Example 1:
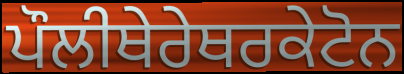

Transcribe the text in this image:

ਪੌਲੀਥੇਰੇਥਰਕੇਟੋਨ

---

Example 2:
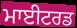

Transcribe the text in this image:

ਮਾਈਟਰਡ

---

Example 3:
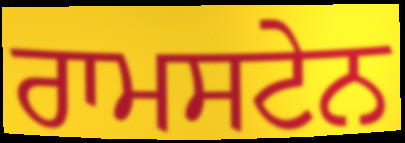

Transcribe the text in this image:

ਰਾਮਸਟੇਨ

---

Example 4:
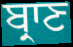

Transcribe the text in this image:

ਬ੍ਰਾਣ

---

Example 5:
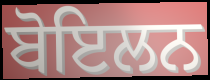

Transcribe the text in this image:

ਬੋਇਲਨ